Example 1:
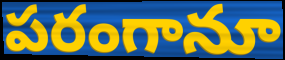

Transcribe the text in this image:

పరంగానూ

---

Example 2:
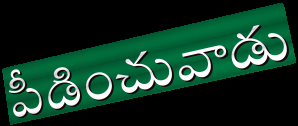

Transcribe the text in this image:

పీడించువాడు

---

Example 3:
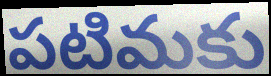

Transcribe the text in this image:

పటిమకు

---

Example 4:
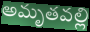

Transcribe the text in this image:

అమృతవల్లి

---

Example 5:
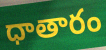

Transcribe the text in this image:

ధాతారం